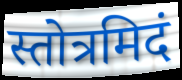
स्तोत्रमिदं